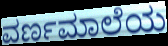
ವರ್ಣಮಾಲೆಯ